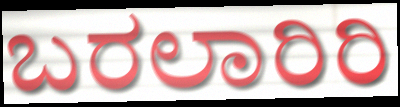
ಬರಲಾರಿರಿ